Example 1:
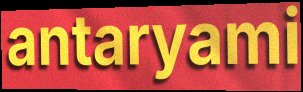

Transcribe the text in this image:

antaryami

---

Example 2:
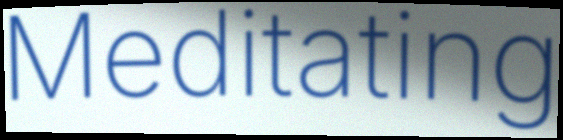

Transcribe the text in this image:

Meditating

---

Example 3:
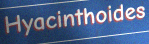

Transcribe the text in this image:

Hyacinthoides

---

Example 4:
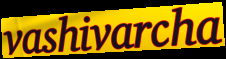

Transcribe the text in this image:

vashivarcha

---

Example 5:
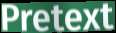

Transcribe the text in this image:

Pretext